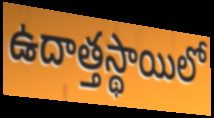
ఉదాత్తస్థాయిలో